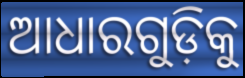
ଆଧାରଗୁଡ଼ିକୁ